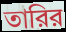
তারির